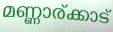
മണ്ണാര്ക്കാട്